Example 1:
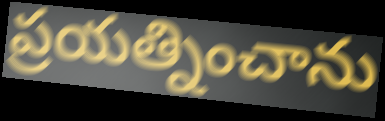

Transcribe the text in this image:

ప్రయత్నించాను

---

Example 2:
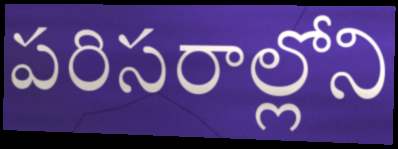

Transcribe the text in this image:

పరిసరాల్లోని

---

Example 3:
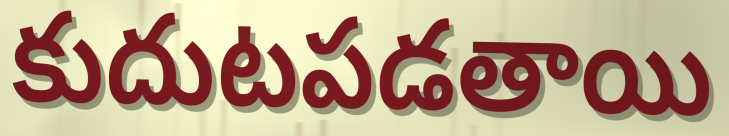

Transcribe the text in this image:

కుదుటపడతాయి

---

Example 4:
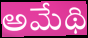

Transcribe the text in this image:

అమేథి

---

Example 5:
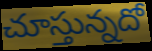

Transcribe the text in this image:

చూస్తున్నదో